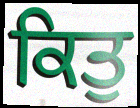
ਕਿਤੁ